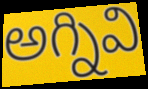
అగ్నివి